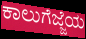
ಕಾಲುಗೆಜ್ಜೆಯ